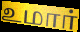
உமார்